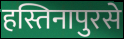
हस्तिनापुरसे